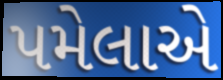
પમેલાએ